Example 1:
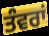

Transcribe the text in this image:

ਤੰਵਰਾਂ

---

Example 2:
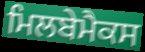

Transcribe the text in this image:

ਮਿਲਬੇਮੈਕਸ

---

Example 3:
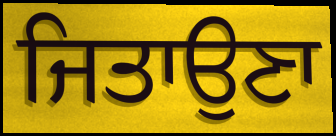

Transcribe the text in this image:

ਜਿਤਾਉਣਾ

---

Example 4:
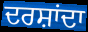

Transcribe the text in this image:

ਦਰਸ਼ਾਂਦਾ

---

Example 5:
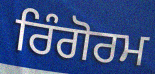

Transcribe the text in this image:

ਰਿੰਗੋਰਮ